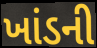
ખાંડની